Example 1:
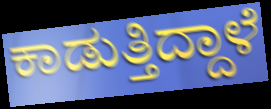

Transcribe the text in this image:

ಕಾಡುತ್ತಿದ್ದಾಳೆ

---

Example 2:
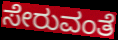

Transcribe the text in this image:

ಸೇರುವಂತೆ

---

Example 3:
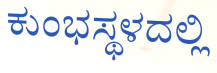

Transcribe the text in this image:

ಕುಂಭಸ್ಥಳದಲ್ಲಿ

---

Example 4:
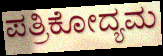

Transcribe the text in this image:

ಪತ್ರಿಕೋದ್ಯಮ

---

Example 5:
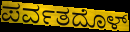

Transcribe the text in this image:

ಪರ್ವತದೊಳ್